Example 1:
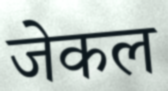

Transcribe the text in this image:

जेकल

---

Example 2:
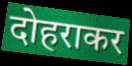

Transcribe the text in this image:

दोहराकर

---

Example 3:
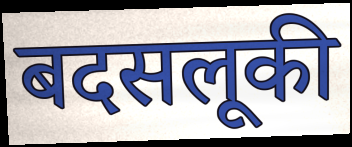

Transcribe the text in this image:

बदसलूकी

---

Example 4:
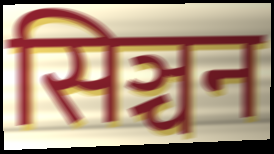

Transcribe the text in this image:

सिञ्चन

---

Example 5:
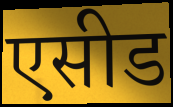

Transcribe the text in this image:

एसीड